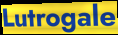
Lutrogale